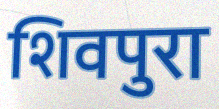
शिवपुरा